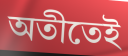
অতীতেই